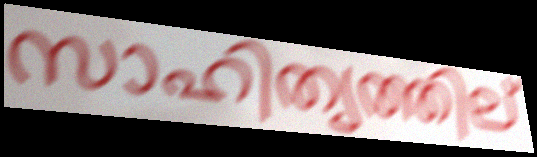
സാഹിത്യത്തില്